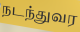
நடந்துவர